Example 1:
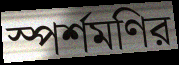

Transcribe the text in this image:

স্পর্শমণির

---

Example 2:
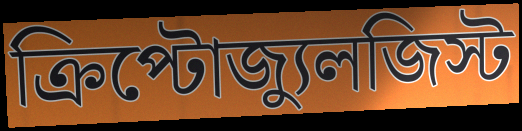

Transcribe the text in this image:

ক্রিপ্টোজ্যুলজিস্ট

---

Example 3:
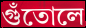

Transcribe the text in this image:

গুঁতোলে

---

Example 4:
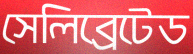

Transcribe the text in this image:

সেলিব্রেটেড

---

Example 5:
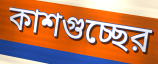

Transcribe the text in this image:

কাশগুচ্ছের